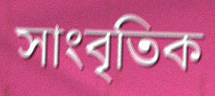
সাংবৃতিক